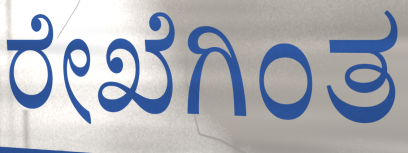
ರೇಖೆಗಿಂತ